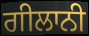
ਗੀਲਾਨੀ